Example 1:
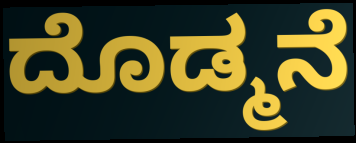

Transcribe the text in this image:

ದೊಡ್ಮನೆ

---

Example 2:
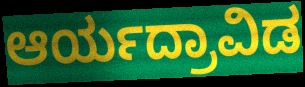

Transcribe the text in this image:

ಆರ್ಯದ್ರಾವಿಡ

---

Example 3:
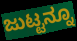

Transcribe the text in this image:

ಜುಟ್ಟನ್ನೂ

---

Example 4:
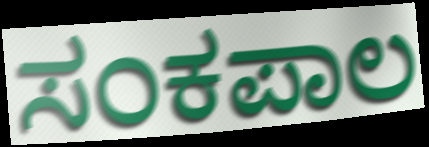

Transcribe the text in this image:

ಸಂಕಪಾಲ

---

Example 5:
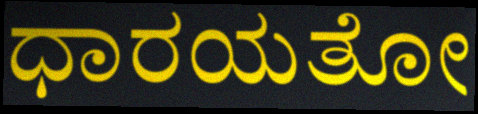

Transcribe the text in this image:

ಧಾರಯತೋ